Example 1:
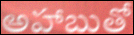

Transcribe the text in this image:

అహాబుతో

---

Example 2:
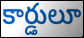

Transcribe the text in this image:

కార్డులూ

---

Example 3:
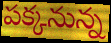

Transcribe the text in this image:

పక్కనున్న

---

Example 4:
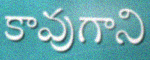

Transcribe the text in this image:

కావుగాని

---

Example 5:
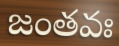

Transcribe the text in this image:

జంతవః